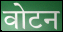
वोटन